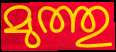
മുത്തു